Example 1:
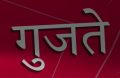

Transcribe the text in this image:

गुजते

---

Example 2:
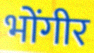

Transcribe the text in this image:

भोंगीर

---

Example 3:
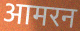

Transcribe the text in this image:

आमरन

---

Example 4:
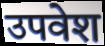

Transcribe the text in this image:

उपवेश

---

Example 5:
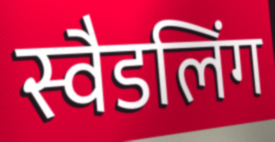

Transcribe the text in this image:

स्वैडलिंग